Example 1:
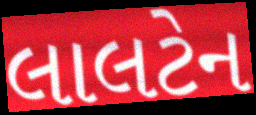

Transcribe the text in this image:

લાલટેન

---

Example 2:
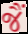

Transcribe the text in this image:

જૈં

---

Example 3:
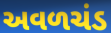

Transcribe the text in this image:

અવળચંડ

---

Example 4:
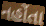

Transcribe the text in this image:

નહોંતા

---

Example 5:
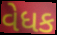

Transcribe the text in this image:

વેધક